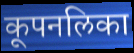
कूपनलिका